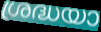
ശ്രദ്ധയാ